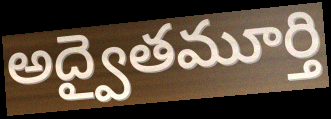
అద్వైతమూర్తి